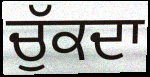
ਚੁੱਕਦਾ